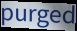
purged